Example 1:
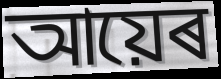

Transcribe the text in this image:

আয়েৰ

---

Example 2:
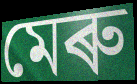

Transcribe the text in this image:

মেৰু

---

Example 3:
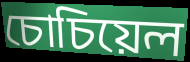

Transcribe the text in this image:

চোচিয়েল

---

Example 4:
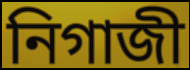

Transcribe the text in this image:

নিগাজী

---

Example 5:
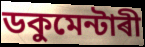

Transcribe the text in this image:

ডকুমেন্টাৰী